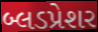
બ્લડપ્રેશર